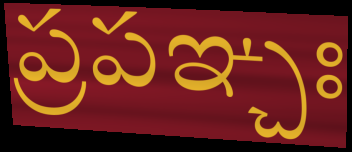
ప్రపఞ్చః